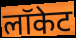
लॉकेट